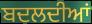
ਬਦਲਦੀਆਂ